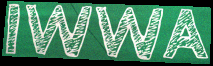
IWWA